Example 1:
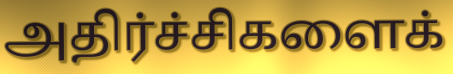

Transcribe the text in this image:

அதிர்ச்சிகளைக்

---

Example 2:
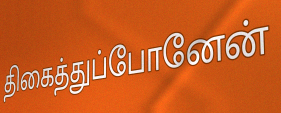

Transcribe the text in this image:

திகைத்துப்போனேன்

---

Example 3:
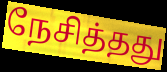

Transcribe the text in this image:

நேசித்தது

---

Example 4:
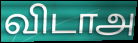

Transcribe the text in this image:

விடாஅ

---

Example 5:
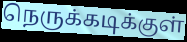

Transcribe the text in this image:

நெருக்கடிக்குள்